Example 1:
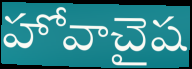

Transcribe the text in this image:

హోవాచైష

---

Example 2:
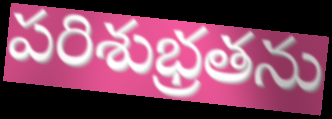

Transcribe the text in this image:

పరిశుభ్రతను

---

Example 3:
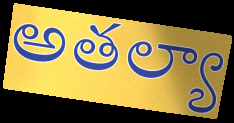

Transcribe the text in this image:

అతల్యా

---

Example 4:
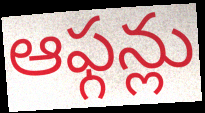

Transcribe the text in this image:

ఆఫ్గన్లు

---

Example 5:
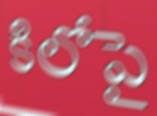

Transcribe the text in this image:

కిలోపై